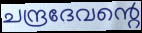
ചന്ദ്രദേവന്റെ